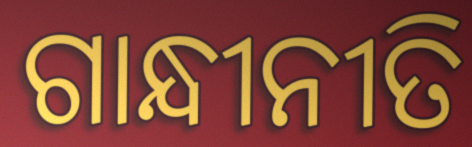
ଗାନ୍ଧୀନୀତି